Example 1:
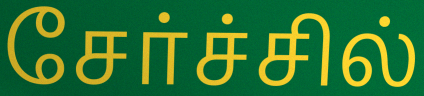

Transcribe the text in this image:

சேர்ச்சில்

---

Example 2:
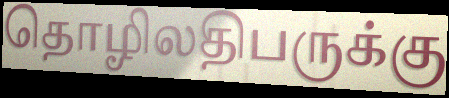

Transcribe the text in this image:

தொழிலதிபருக்கு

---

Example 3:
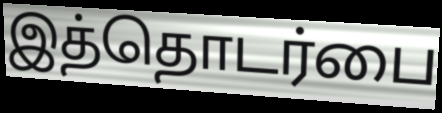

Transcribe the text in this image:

இத்தொடர்பை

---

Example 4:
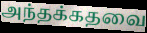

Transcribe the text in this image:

அந்தக்கதவை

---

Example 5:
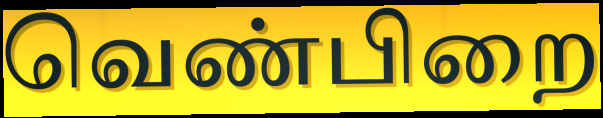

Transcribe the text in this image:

வெண்பிறை